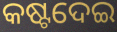
କଷ୍ଟଦେଇ